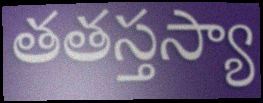
తతస్తస్యా